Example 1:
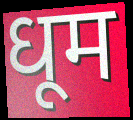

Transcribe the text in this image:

धूम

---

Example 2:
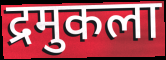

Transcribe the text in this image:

द्रमुकला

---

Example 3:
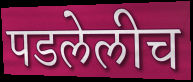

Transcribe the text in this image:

पडलेलीच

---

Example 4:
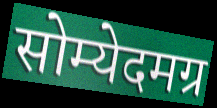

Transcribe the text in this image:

सोम्येदमग्र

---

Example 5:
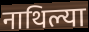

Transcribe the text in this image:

नाथिल्या